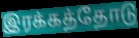
இரக்கத்தோடு